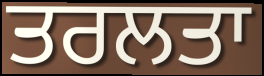
ਤਰਲਤਾ